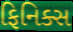
ફિનિક્સ